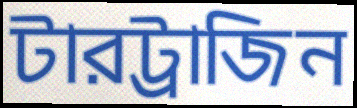
টারট্রাজিন